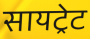
सायट्रेट